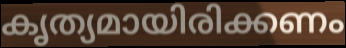
കൃത്യമായിരിക്കണം